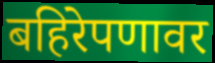
बहिरेपणावर